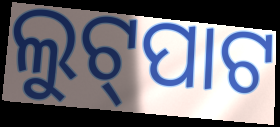
ଲୁଟ୍‍ପାଟ